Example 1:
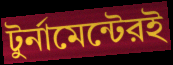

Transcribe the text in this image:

টুর্নামেন্টেরই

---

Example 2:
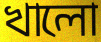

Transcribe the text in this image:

খালো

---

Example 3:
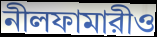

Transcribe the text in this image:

নীলফামারীও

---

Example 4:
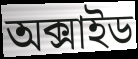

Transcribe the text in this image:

অক্সাইড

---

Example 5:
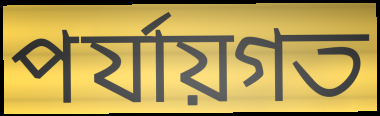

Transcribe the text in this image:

পর্যায়গত